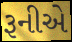
રૂનીએ